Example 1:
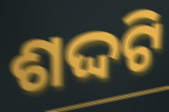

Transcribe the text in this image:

ଶଦ୍ଦଟି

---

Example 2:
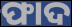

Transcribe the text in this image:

ଫାଦ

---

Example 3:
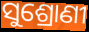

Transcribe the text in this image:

ସୁଶ୍ରୋଣୀ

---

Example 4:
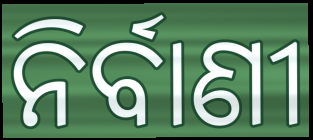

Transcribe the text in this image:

ନିର୍ବାଣୀ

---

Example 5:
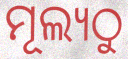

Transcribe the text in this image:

ମୂଲ୍ୟଠୁ